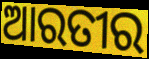
ଆରତୀର